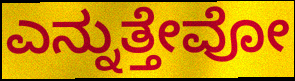
ಎನ್ನುತ್ತೇವೋ